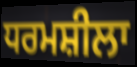
ਧਰਮਸ਼ੀਲਾ